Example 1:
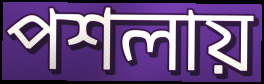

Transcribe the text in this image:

পশলায়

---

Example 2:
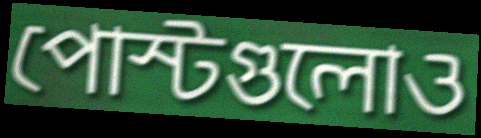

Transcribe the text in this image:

পোস্টগুলোও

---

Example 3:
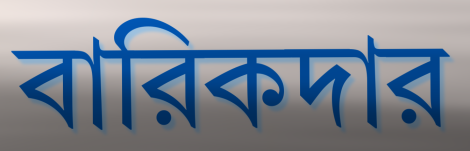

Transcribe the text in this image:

বারিকদার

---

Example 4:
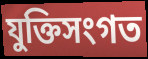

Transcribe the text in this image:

যুক্তিসংগত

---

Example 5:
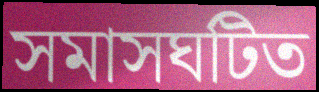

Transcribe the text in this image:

সমাসঘটিত